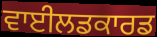
ਵਾਈਲਡਕਾਰਡ